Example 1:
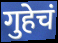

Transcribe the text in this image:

गुहेचं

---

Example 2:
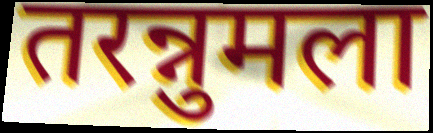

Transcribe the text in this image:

तरन्नुमला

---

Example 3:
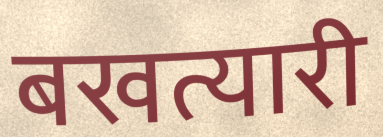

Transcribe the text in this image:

बखत्यारी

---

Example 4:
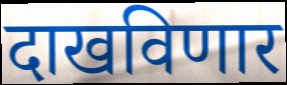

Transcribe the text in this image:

दाखविणार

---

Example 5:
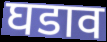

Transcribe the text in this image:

घडाव